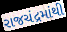
રાજચંદ્રમાંથી